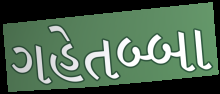
ગહેતબ્બા